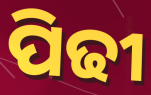
ପିଢୀ